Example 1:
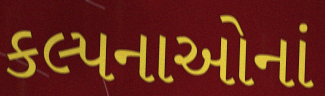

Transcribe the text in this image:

કલ્પનાઓનાં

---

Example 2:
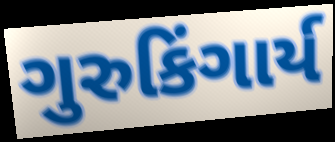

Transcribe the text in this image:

ગુરુકિંગાર્ય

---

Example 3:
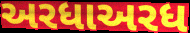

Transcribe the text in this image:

અરધાઅરધ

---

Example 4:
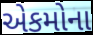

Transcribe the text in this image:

એકમોના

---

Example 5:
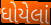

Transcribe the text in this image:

ધોયેલાં